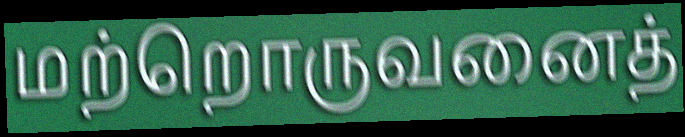
மற்றொருவனைத்